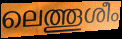
ലെത്തൂശീം